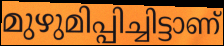
മുഴുമിപ്പിച്ചിട്ടാണ്